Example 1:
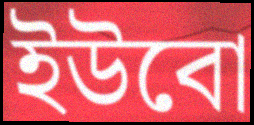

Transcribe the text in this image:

ইউবো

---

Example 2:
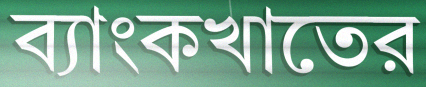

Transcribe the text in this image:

ব্যাংকখাতের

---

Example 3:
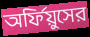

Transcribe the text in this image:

অর্ফিয়ুসের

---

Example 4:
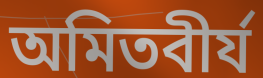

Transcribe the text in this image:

অমিতবীর্য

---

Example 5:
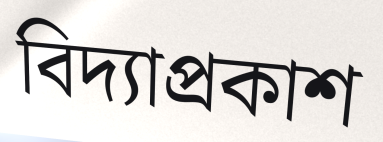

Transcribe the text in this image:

বিদ্যাপ্রকাশ